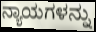
ನ್ಯಾಯಗಳನ್ನು